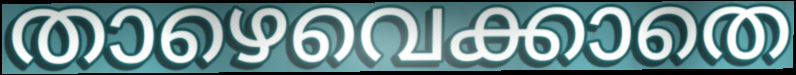
താഴെവെക്കാതെ